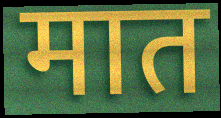
मात